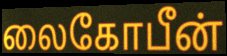
லைகோபீன்